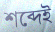
শব্দেই